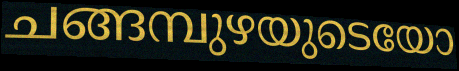
ചങ്ങമ്പുഴയുടെയോ